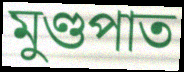
মুণ্ডপাত